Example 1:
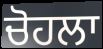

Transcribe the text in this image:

ਚੋਹਲਾ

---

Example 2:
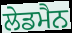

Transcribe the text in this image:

ਲੇਡਮੈਨ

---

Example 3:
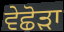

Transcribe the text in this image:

ਵੇਛੋੜਾ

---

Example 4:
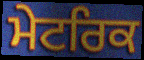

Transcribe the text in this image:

ਮੇਟਰਿਕ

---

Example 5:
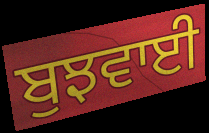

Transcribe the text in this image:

ਬੁਝਵਾਈ